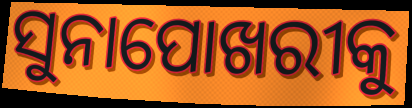
ସୁନାପୋଖରୀକୁ